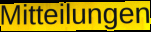
Mitteilungen